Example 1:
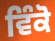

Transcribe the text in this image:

ਵਿੰਕੋ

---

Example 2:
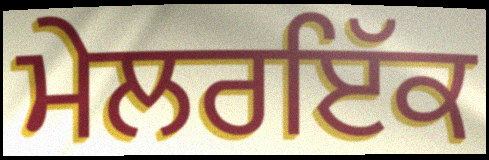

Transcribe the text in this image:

ਮੇਲਰਇੱਕ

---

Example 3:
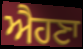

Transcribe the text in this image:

ਐਹਣਾ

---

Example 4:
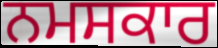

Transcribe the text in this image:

ਨਮਸਕਾਰ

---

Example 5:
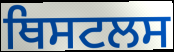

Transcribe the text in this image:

ਥਿਸਟਲਸ